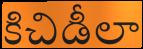
కిచిడీలా